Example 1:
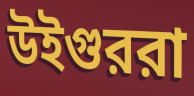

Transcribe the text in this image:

উইগুররা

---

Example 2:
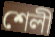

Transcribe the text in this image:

শেলী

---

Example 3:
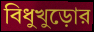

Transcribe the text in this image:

বিধুখুড়োর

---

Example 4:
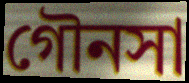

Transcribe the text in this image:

গৌনসা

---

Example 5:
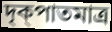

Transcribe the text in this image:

দৃক্পাতমাত্র